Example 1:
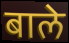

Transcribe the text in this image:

बाले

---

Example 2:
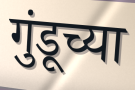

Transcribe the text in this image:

गुंडूच्या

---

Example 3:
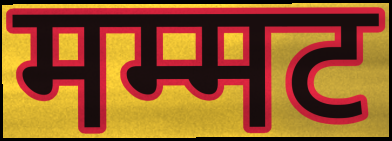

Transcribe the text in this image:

मम्मट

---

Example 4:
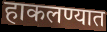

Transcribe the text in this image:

हाकलण्यात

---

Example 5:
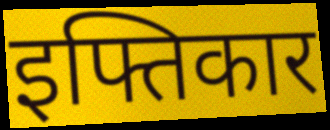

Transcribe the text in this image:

इफ्तिकार